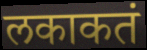
लकाकतं